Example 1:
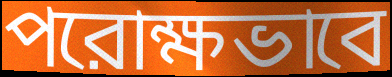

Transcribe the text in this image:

পরোক্ষভাবে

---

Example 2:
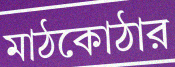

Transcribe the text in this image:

মাঠকোঠার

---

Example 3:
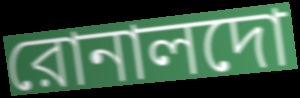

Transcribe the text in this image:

রোনালদো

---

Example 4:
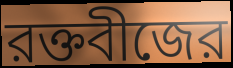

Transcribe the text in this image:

রক্তবীজের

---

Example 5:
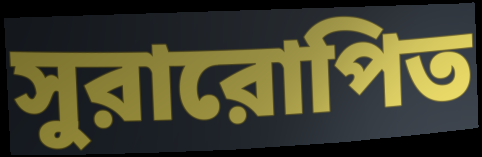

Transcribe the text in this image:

সুরারোপিত